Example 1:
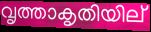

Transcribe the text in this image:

വൃത്താകൃതിയില്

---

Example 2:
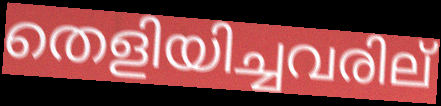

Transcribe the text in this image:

തെളിയിച്ചവരില്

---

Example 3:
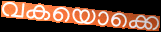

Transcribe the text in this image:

വകയൊക്കെ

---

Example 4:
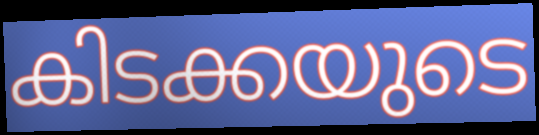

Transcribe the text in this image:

കിടക്കയുടെ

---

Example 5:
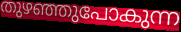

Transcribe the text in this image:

തുഴഞ്ഞുപോകുന്ന